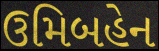
ઉમિબહેન